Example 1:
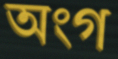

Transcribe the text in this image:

অংগ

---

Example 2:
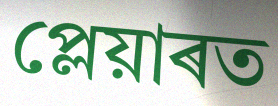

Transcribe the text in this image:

প্লেয়াৰত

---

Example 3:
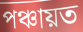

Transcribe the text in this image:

পঞ্চায়ত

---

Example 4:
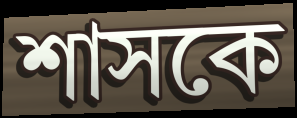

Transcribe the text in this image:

শাসকে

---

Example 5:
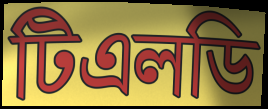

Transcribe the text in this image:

টিএলডি